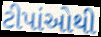
ટીપાંઓથી